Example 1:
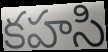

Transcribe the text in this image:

కహసి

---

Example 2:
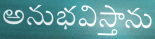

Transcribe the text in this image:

అనుభవిస్తాను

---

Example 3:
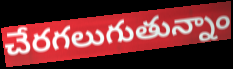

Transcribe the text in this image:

చేరగలుగుతున్నాం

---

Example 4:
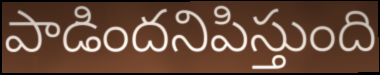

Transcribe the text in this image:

పాడిందనిపిస్తుంది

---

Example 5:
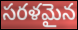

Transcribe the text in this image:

సరళమైన